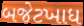
બજેટખાધ